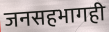
जनसहभागही